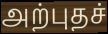
அற்புதச்